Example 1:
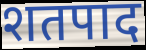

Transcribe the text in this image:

शतपाद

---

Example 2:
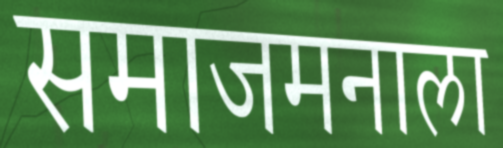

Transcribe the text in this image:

समाजमनाला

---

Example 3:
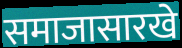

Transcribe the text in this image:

समाजासारखे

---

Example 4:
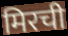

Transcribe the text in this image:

मिरची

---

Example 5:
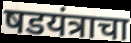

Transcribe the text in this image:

षडयंत्राचा